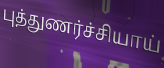
புத்துணர்ச்சியாய்